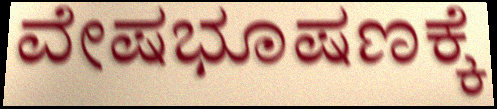
ವೇಷಭೂಷಣಕ್ಕೆ